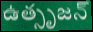
ఉత్సృజన్